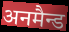
अनमैन्ड